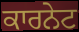
ਕਾਰਨੇਟ